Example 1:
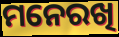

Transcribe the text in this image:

ମନେରଖି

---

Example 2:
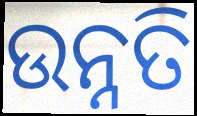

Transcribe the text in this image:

ଉନ୍ନତି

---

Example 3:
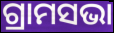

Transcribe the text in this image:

ଗ୍ରାମସଭା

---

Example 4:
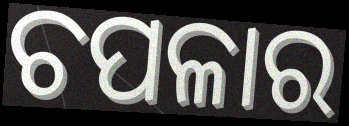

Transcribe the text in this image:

ଚପଳାର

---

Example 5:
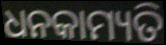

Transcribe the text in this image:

ଧନକାମ୍ୟତି